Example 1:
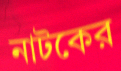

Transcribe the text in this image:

নাটকের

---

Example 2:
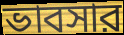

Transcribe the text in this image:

ভাবসার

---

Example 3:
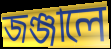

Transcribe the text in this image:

জঞ্জালে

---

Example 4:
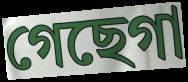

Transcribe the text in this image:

গেছেগা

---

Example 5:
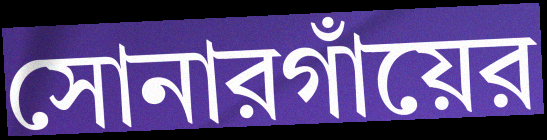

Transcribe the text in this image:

সোনারগাঁয়ের